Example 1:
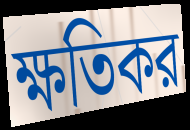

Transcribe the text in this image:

ক্ষতিকর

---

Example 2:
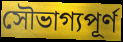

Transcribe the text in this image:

সৌভাগ্যপূর্ণ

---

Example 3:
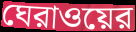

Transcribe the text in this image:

ঘেরাওয়ের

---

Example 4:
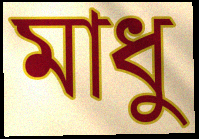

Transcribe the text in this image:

মাধু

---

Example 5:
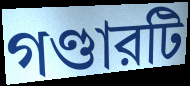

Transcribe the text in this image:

গণ্ডারটি